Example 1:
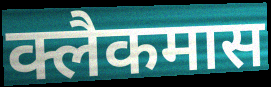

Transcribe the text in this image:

क्लैकमास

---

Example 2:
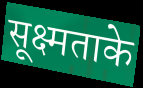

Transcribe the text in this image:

सूक्ष्मताके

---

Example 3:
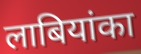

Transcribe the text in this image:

लाबियांका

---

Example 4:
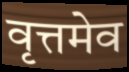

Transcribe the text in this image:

वृत्तमेव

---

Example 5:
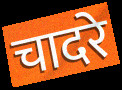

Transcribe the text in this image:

चादरे